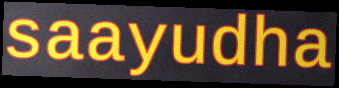
saayudha